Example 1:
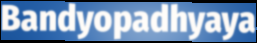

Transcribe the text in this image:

Bandyopadhyaya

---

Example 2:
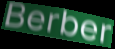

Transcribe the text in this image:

Berber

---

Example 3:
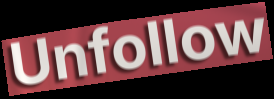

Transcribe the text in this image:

Unfollow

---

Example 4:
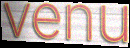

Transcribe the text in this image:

venu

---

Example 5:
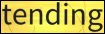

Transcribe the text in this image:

tending